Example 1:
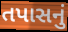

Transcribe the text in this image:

તપાસનું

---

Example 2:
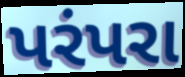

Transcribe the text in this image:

પરંપરા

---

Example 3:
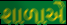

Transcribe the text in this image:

શાળાએે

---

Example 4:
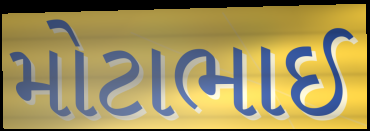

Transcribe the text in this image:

મોટાભાઈ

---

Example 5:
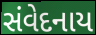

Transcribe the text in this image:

સંવેદનાય